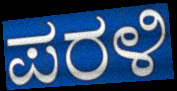
ಪರಳಿ